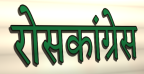
रोसकांग्रेस